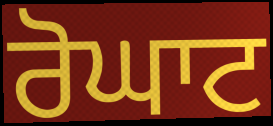
ਰੋਘਾਟ